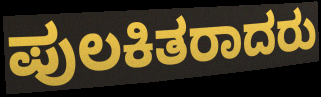
ಪುಲಕಿತರಾದರು